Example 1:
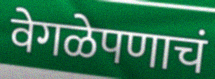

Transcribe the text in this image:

वेगळेपणाचं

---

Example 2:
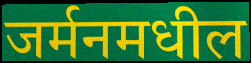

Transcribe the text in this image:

जर्मनमधील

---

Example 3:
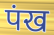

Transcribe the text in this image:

पंख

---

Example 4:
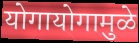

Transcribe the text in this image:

योगायोगामुळे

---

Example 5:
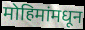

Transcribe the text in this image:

मोहिमांमधून